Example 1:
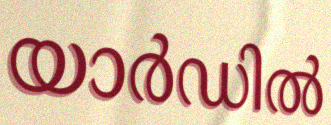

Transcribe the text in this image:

യാർഡിൽ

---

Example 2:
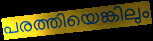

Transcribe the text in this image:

പരത്തിയെങ്കിലും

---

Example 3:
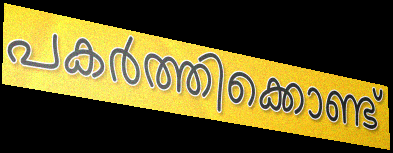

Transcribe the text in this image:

പകർത്തിക്കൊണ്ട്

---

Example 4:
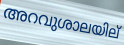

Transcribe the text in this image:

അറവുശാലയില്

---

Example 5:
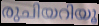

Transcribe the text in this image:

രുചിയറിയൂ